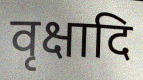
वृक्षादि